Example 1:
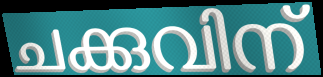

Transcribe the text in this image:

ചക്കുവിന്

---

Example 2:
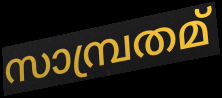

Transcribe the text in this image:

സാമ്പ്രതമ്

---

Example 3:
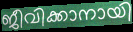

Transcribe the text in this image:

ജീവിക്കാനായി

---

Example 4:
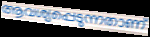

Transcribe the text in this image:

ആവശ്യപ്പെടുന്നതാണ്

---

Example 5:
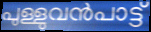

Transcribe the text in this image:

പുള്ളുവൻപാട്ട്